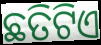
ଛତିଟିଏ